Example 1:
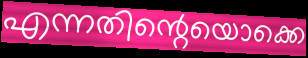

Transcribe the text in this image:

എന്നതിന്റെയൊക്കെ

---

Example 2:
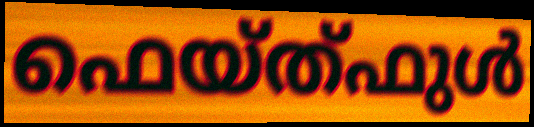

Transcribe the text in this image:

ഫെയ്ത്ഫുൾ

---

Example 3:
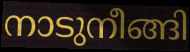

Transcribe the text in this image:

നാടുനീങ്ങി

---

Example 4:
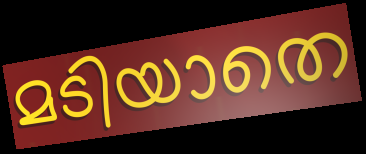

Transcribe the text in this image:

മടിയാതെ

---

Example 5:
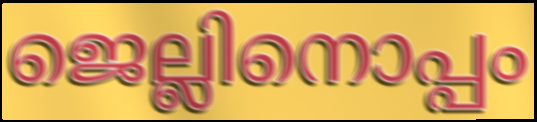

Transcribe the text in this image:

ജെല്ലിനൊപ്പം